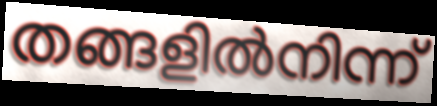
തങ്ങളിൽനിന്ന്